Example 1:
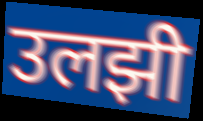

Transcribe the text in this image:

उलझी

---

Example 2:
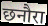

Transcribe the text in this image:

छनौरा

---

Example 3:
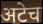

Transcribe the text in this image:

अटेच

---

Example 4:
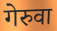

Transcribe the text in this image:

गेरुवा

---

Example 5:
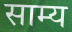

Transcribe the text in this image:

साम्‍य